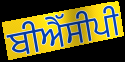
ਬੀਐੱਸੀਪੀ